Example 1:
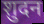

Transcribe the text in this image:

शुदन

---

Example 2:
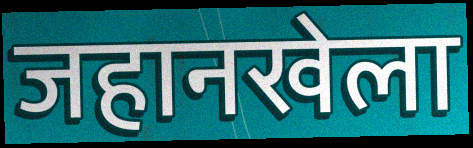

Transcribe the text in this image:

जहानखेला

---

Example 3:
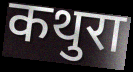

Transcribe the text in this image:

कथुरा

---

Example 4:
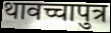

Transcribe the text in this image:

थावच्चापुत्र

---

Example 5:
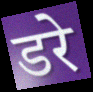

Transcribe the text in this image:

डरे